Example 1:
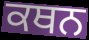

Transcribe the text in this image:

ਕਥਨ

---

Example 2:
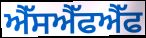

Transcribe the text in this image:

ਐੱਸਐੱਫਐੱਫ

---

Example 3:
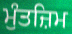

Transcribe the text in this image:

ਮੁੰਤਜ਼ਿਮ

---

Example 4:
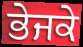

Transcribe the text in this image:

ਭੇਜਕੇ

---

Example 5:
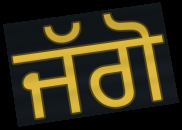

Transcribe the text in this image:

ਜੱਗੋ